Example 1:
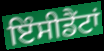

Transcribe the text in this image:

ਇੰਸੀਡੈਂਟਾਂ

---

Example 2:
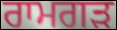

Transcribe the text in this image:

ਰਾਮਗੜ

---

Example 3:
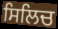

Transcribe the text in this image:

ਸਿਲਿਚ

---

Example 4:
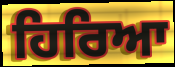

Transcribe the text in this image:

ਹਿਰਿਆ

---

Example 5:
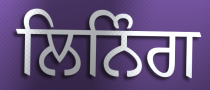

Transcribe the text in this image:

ਲਿਨਿੰਗ